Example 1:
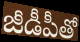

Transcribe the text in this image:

జీడీపీతో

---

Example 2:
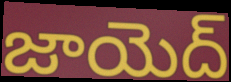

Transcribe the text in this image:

జాయెద్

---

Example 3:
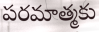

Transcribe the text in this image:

పరమాత్మకు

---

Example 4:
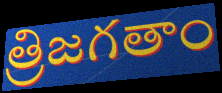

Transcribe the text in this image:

త్రిజగతాం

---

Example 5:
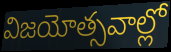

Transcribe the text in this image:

విజయోత్సవాల్లో